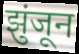
झुंजून